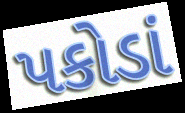
પકોડાં